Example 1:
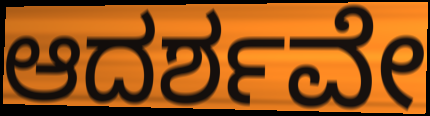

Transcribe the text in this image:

ಆದರ್ಶವೇ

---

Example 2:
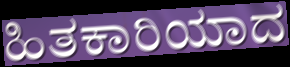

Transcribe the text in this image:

ಹಿತಕಾರಿಯಾದ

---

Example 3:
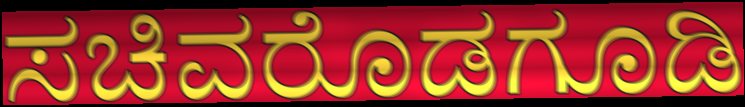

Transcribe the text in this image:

ಸಚಿವರೊಡಗೂಡಿ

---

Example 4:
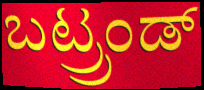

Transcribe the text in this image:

ಬಟ್ರ್ರಂಡ್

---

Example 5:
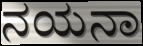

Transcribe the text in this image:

ನಯನಾ